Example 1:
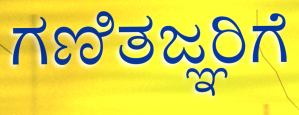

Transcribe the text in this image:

ಗಣಿತಜ್ಞರಿಗೆ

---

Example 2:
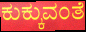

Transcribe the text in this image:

ಕುಕ್ಕುವಂತೆ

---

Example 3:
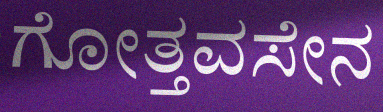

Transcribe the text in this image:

ಗೋತ್ತವಸೇನ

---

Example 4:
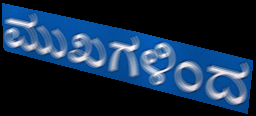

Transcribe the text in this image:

ಮುಖಗಳಿಂದ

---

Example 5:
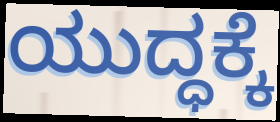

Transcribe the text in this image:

ಯುದ್ಧಕ್ಕೆ